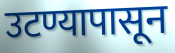
उटण्यापासून